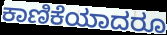
ಕಾಣಿಕೆಯಾದರೂ